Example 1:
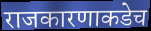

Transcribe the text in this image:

राजकारणाकडेच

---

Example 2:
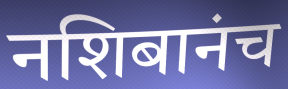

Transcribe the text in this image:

नशिबानंच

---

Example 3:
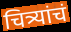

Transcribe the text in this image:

चित्र्यांचं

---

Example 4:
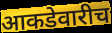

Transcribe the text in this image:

आकडेवारीच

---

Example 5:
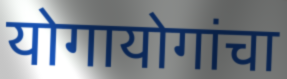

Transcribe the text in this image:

योगायोगांचा